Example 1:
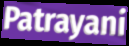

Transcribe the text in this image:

Patrayani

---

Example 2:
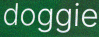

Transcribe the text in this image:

doggie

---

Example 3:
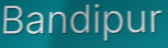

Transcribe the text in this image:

Bandipur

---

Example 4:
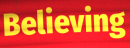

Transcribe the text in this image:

Believing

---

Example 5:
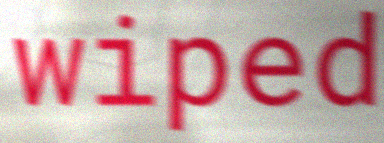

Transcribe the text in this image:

wiped